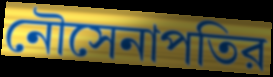
নৌসেনাপতির